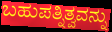
ಬಹುಪತ್ನಿತ್ವವನ್ನು